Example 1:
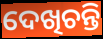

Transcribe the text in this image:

ଦେଖିଚନ୍ତି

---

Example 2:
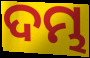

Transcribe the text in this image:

ଦମ୍ଭ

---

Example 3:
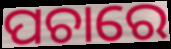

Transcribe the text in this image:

ପଚାରେ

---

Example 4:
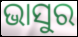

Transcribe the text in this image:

ଭାସୁର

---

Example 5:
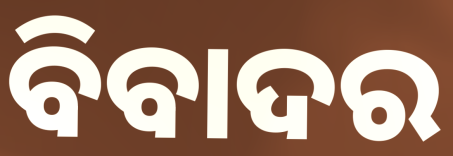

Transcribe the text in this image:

ବିବାଦର